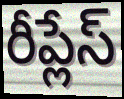
రీప్లేస్